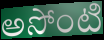
అసోంటి